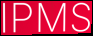
IPMS